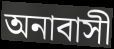
অনাবাসী